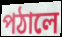
পঠালে